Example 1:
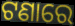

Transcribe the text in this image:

ଟଣାରେ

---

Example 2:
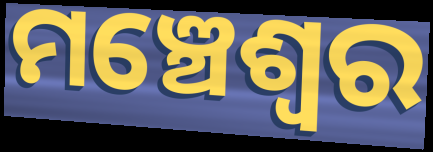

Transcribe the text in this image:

ମଞ୍ଚେଶ୍ଵର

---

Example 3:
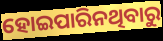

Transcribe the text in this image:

ହୋଇପାରିନଥିବାରୁ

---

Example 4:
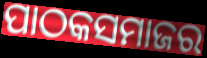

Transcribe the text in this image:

ପାଠକସମାଜର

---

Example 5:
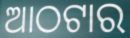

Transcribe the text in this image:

ଆଠଟାର